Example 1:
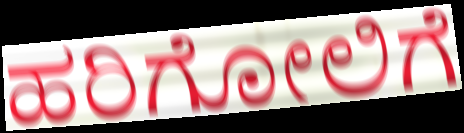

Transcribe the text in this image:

ಹರಿಗೋಲಿಗೆ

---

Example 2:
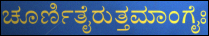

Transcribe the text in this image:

ಚೂರ್ಣಿತೈರುತ್ತಮಾಂಗೈಃ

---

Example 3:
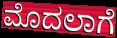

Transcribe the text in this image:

ಮೊದಲಾಗೆ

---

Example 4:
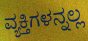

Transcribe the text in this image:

ವ್ಯಕ್ತಿಗಳನ್ನಲ್ಲ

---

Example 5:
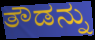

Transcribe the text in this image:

ತೌಡನ್ನು